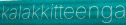
kalakkitteenga